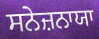
ਸਨੇਜ਼ਨਾਯਾ